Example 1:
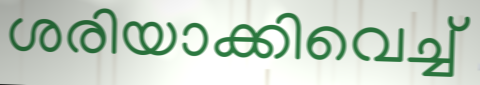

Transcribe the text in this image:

ശരിയാക്കിവെച്ച്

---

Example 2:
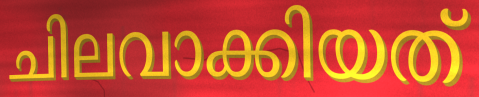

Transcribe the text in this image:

ചിലവാക്കിയത്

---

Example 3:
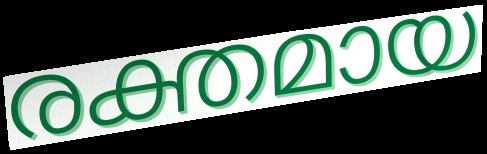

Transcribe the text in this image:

രക്തമായ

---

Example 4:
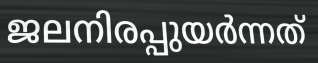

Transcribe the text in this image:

ജലനിരപ്പുയർന്നത്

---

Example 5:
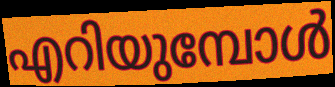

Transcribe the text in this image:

എറിയുമ്പോൾ